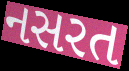
નસરત